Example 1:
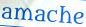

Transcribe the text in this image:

amache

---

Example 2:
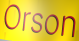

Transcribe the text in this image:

Orson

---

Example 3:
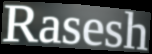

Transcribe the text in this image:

Rasesh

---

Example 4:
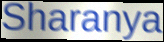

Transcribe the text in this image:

Sharanya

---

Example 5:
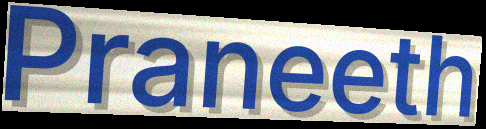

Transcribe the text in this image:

Praneeth